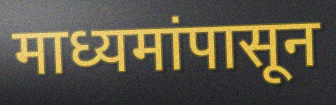
माध्यमांपासून